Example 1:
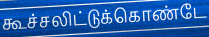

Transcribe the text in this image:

கூச்சலிட்டுக்கொண்டே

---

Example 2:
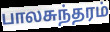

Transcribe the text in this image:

பாலசுந்தரம்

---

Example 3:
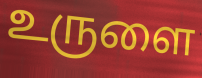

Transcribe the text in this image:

உருளை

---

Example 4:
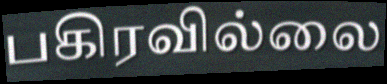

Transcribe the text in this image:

பகிரவில்லை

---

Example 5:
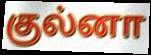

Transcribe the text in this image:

குல்னா